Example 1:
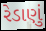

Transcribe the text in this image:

રેડાણું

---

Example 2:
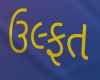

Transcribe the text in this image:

ઉલ્ફત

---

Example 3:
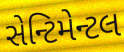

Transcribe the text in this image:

સેન્ટિમેન્ટલ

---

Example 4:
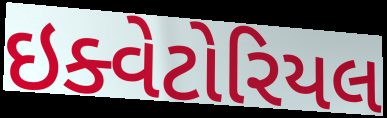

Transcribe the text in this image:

ઇક્વેટોરિયલ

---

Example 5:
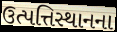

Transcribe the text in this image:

ઉત્પત્તિસ્થાનના